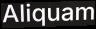
Aliquam